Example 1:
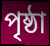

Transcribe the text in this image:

পৃষ্ঠা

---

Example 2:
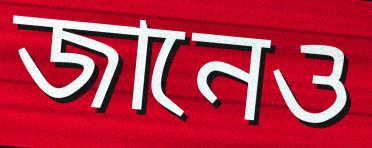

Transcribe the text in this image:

জানেও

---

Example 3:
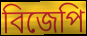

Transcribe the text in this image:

বিজেপি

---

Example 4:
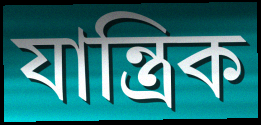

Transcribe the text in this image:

যান্ত্ৰিক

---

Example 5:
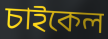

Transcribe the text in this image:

চাইকেল